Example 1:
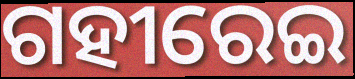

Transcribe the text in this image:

ଗହୀରେଇ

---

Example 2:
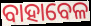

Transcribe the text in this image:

ବାହାବେଳ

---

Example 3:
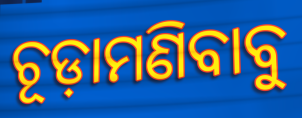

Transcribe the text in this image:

ଚୂଡ଼ାମଣିବାବୁ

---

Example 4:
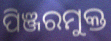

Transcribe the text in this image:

ପିଞ୍ଜରମୁକ୍ତ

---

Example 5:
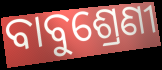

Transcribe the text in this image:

ବାବୁଶ୍ରେଣୀ